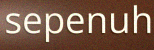
sepenuh